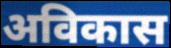
अविकास